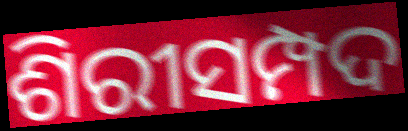
ଶିରୀସମ୍ପଦ